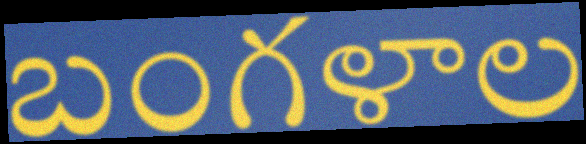
బంగళాల